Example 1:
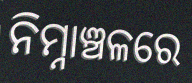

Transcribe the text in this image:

ନିମ୍ନାଞ୍ଚଳରେ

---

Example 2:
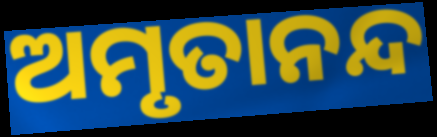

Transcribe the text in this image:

ଅମୃତାନନ୍ଦ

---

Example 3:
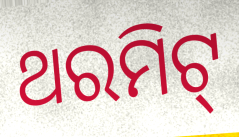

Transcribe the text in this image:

ଥରମିଟ୍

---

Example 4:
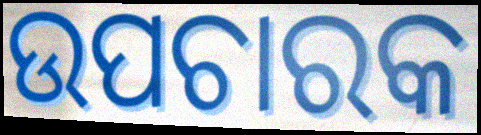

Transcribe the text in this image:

ଉପଚାରକ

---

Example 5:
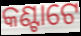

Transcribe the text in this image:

କଣ୍ଟାଟେ